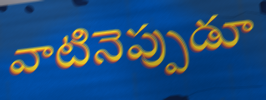
వాటినెప్పుడూ